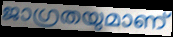
ജാഗ്രതയുമാണ്